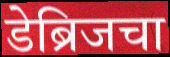
डेब्रिजचा